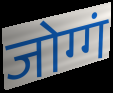
जोग्गं